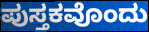
ಪುಸ್ತಕವೊಂದು